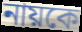
নায়কে